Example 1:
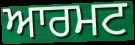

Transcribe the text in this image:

ਆਰਮਟ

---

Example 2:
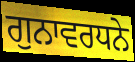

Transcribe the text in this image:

ਗੁਨਾਵਰਧਨੇ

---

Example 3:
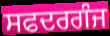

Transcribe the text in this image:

ਸਫਦਰਗੰਜ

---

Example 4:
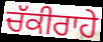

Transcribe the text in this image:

ਚੱਕੀਰਾਹੇ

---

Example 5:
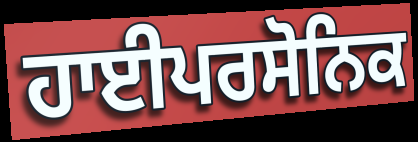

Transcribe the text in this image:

ਹਾਈਪਰਸੋਨਿਕ